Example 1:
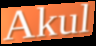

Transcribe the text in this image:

Akul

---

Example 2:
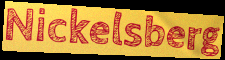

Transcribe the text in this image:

Nickelsberg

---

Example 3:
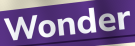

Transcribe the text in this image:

Wonder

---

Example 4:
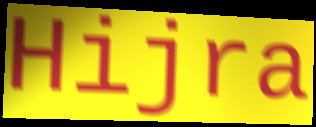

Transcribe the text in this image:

Hijra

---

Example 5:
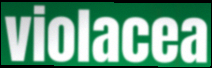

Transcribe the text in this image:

violacea